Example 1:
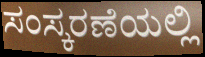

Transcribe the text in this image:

ಸಂಸ್ಕರಣೆಯಲ್ಲಿ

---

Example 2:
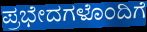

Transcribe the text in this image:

ಪ್ರಭೇದಗಳೊಂದಿಗೆ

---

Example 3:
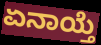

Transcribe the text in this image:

ಏನಾಯ್ತೆ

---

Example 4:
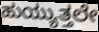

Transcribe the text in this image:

ಹುಯ್ಯುತ್ತಲೇ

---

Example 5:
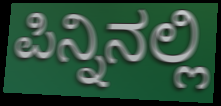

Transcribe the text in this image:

ಪಿನ್ನಿನಲ್ಲಿ